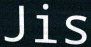
Jis